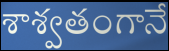
శాశ్వతంగానే